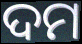
ଦମ